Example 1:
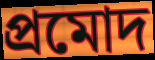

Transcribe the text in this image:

প্ৰমোদ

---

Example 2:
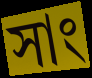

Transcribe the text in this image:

সাং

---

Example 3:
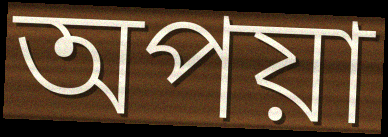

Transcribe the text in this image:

অপয়া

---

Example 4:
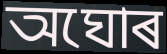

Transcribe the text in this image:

অঘোৰ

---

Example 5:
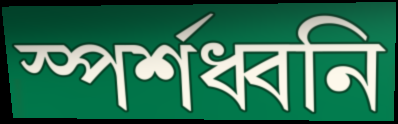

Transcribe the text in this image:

স্পৰ্শধ্বনি